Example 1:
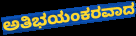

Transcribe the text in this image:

ಅತಿಭಯಂಕರವಾದ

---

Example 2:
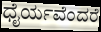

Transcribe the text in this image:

ಧೈರ್ಯವೆಂದರೆ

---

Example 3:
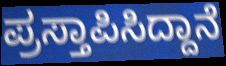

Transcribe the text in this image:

ಪ್ರಸ್ತಾಪಿಸಿದ್ದಾನೆ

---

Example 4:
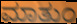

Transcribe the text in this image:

ಮಾತುಂ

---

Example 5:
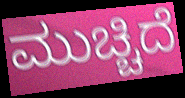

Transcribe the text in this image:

ಮುಚ್ಚಿದೆ